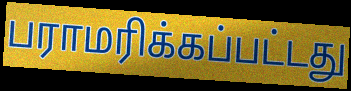
பராமரிக்கப்பட்டது